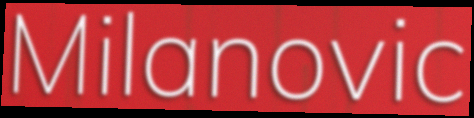
Milanovic